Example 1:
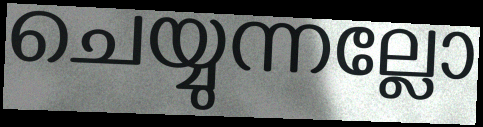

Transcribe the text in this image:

ചെയ്യുന്നല്ലോ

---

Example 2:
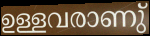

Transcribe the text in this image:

ഉള്ളവരാണു്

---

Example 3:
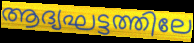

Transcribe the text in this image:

ആദ്യഘട്ടത്തിലേ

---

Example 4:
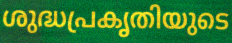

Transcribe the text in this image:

ശുദ്ധപ്രകൃതിയുടെ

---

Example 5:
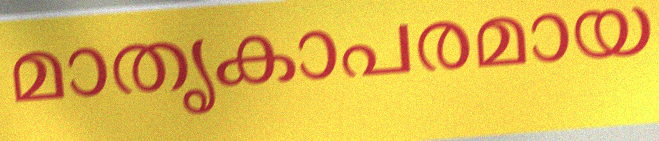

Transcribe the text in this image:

മാതൃകാപരമായ